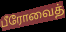
பீரோவைத்